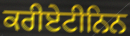
ਕਰੀਏਟੀਨਿਨ